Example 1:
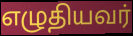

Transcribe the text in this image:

எழுதியவர்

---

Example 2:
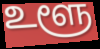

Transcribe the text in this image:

உளூ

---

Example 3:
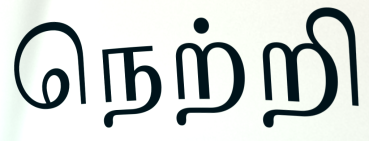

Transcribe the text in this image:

நெற்றி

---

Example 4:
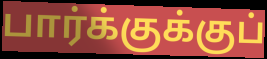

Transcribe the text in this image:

பார்க்குக்குப்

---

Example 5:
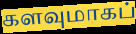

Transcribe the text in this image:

களவுமாகப்